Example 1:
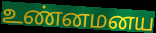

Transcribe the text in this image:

உண்னமனய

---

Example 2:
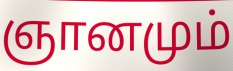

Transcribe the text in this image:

ஞானமும்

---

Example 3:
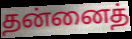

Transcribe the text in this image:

தன்னைத்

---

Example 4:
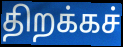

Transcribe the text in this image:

திறக்கச்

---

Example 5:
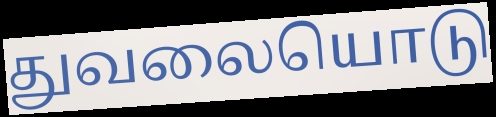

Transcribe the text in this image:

துவலையொடு